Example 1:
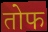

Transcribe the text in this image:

तोफ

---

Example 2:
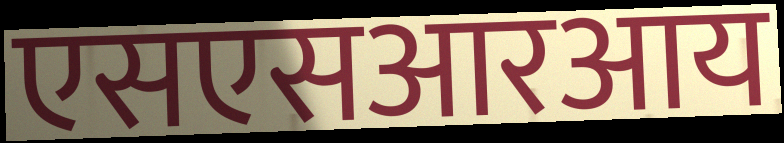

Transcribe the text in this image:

एसएसआरआय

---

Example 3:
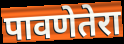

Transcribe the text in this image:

पावणेतेरा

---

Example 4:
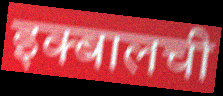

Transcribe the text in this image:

इक्बालची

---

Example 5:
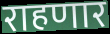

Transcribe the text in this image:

राहणार